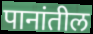
पानांतील